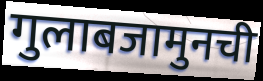
गुलाबजामुनची